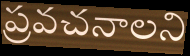
ప్రవచనాలని